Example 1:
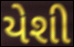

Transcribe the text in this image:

યેશી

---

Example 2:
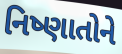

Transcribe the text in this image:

નિષ્ણાતોને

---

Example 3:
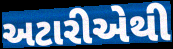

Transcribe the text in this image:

અટારીએથી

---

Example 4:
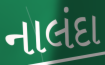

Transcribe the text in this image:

નાલંદા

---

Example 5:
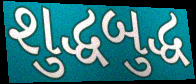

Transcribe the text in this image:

શુદ્ધબુદ્ધ